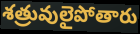
శత్రువులైపోతారు